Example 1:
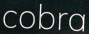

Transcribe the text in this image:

cobra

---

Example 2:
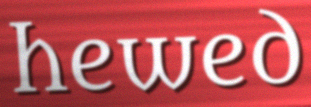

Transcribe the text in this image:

hewed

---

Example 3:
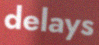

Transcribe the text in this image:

delays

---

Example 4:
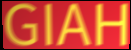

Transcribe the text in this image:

GIAH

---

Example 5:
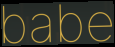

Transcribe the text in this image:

babe